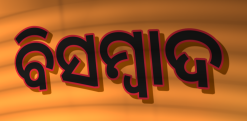
ବିସମ୍ୱାଦ